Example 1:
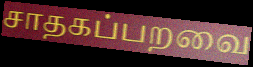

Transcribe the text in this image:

சாதகப்பறவை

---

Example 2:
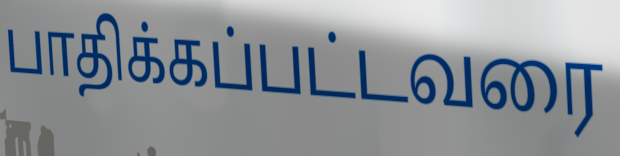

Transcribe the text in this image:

பாதிக்கப்பட்டவரை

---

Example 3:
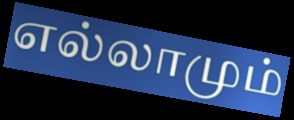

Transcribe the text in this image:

எல்லாமும்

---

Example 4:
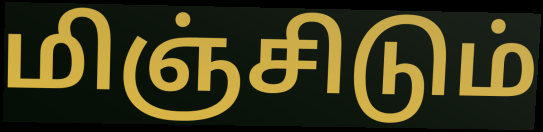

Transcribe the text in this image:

மிஞ்சிடும்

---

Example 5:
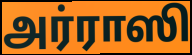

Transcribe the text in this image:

அர்ராஸி